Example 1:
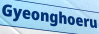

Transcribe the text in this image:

Gyeonghoeru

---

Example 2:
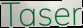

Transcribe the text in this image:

Taser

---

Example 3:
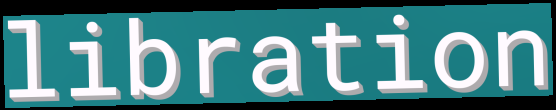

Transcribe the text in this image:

libration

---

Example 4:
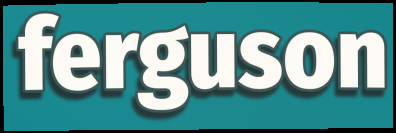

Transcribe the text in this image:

ferguson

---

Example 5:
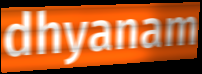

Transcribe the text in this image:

dhyanam